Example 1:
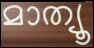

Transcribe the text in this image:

മാത്യൂ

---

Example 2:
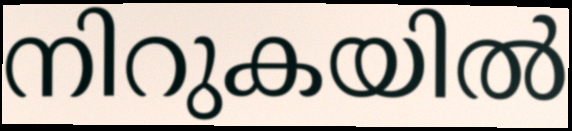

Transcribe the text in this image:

നിറുകയിൽ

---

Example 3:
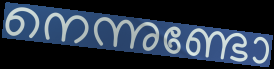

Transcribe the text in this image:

നെന്നുണ്ടോ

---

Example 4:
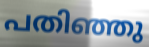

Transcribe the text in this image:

പതിഞ്ഞു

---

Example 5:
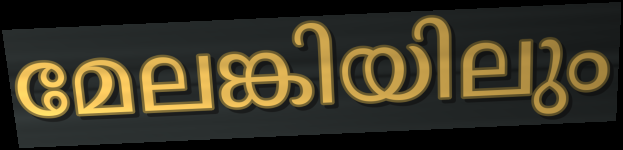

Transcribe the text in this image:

മേലങ്കിയിലും